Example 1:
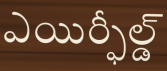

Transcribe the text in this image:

ఎయిర్ఫీల్డ్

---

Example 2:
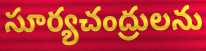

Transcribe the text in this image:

సూర్యచంద్రులను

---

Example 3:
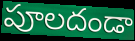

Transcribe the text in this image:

పూలదండా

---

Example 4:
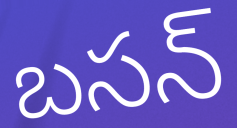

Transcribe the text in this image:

బసన్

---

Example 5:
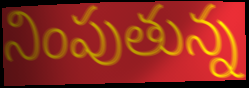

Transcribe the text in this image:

నింపుతున్న